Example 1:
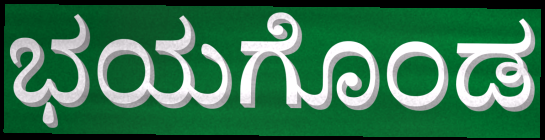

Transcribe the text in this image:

ಭಯಗೊಂಡ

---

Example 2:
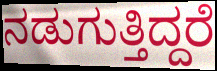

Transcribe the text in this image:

ನಡುಗುತ್ತಿದ್ದರೆ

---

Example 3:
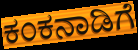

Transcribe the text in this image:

ಕಂಕನಾಡಿಗೆ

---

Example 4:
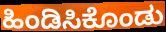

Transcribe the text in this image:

ಹಿಂಡಿಸಿಕೊಂಡು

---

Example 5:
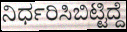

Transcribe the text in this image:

ನಿರ್ಧರಿಸಿಬಿಟ್ಟಿದ್ದೆ